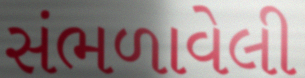
સંભળાવેલી